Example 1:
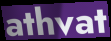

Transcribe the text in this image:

athvat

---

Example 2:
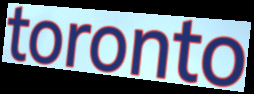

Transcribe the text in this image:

toronto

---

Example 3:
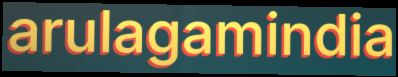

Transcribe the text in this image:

arulagamindia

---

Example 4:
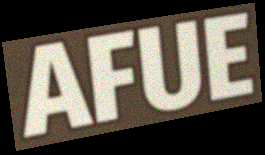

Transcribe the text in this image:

AFUE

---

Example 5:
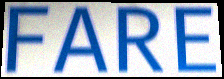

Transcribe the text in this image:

FARE